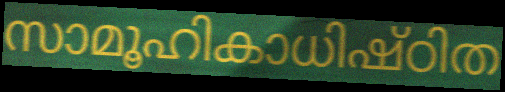
സാമൂഹികാധിഷ്ഠിത